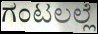
ಗಂಟಲಲ್ಲೆ